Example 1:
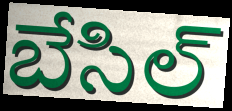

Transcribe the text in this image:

బేసిల్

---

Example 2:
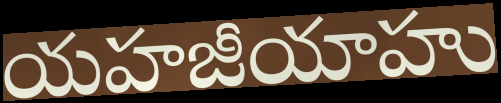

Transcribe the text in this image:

యహజీయాహు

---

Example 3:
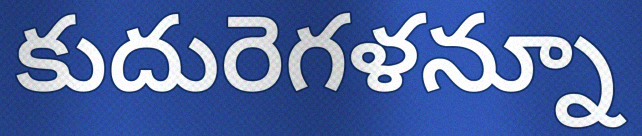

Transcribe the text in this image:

కుదురెగళన్నూ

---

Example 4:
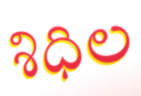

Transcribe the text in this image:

శిధిల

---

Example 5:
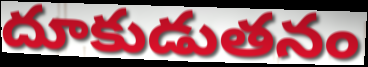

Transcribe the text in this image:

దూకుడుతనం